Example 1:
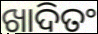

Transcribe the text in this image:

ଖାଦିତଂ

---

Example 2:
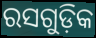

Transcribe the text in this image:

ରସଗୁଡ଼ିକ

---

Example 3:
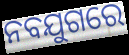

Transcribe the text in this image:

ନବଯୁଗରେ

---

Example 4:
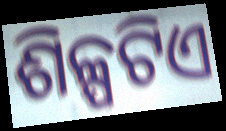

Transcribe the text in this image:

ଶିଳ୍ପଟିଏ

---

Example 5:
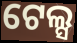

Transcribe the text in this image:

ଟେଲ୍ସ